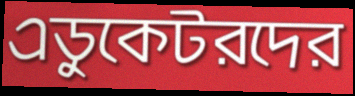
এডুকেটরদের